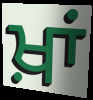
ਖ਼ਾਂ